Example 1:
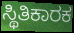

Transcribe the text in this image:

ಸ್ಥಿತಿಕಾರಕ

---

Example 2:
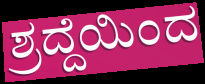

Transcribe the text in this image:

ಶ್ರದ್ದೆಯಿಂದ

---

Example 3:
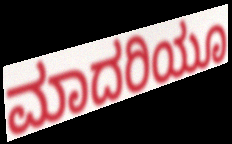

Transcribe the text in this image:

ಮಾದರಿಯೂ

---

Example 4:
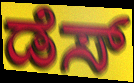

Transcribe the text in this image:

ಡೆಸ್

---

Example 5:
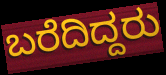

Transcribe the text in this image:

ಬರೆದಿದ್ದರು